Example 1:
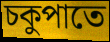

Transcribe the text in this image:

চকুপাতে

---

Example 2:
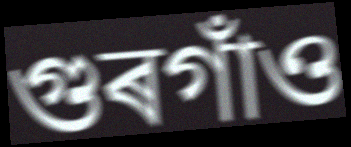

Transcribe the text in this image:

গুৰগাঁও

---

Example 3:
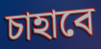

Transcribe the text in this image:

চাহাবে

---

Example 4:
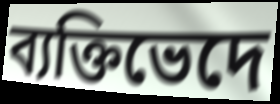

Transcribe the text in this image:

ব্যক্তিভেদে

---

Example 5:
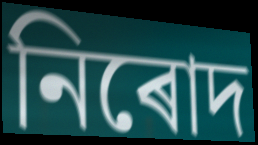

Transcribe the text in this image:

নিৰোদ